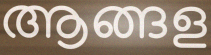
ആങ്ങള